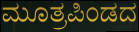
ಮೂತ್ರಪಿಂಡದ